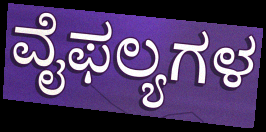
ವೈಫಲ್ಯಗಳ